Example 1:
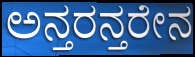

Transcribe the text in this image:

ಅನ್ತರನ್ತರೇನ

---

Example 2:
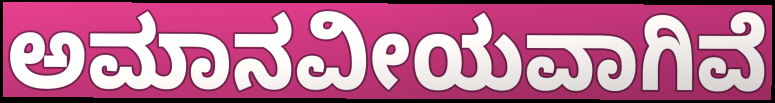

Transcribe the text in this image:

ಅಮಾನವೀಯವಾಗಿವೆ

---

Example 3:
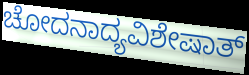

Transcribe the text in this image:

ಚೋದನಾದ್ಯವಿಶೇಷಾತ್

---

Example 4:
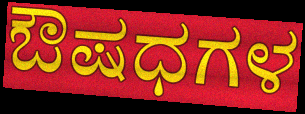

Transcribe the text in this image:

ಔಷಧಗಳ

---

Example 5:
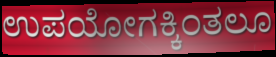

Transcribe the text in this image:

ಉಪಯೋಗಕ್ಕಿಂತಲೂ